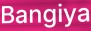
Bangiya